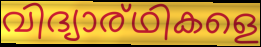
വിദ്യാര്ഥികളെ